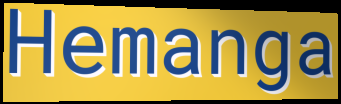
Hemanga